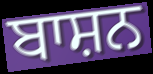
ਬਾਸ਼ਨ